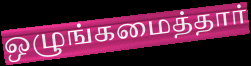
ஒழுங்கமைத்தார்